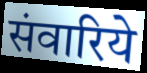
संवारिये